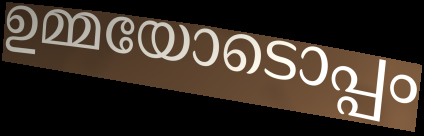
ഉമ്മയോടൊപ്പം